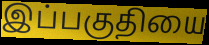
இப்பகுதியை